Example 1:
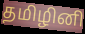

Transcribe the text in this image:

தமிழினி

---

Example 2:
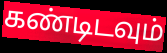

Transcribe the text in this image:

கண்டிடவும்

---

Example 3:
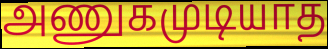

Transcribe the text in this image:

அணுகமுடியாத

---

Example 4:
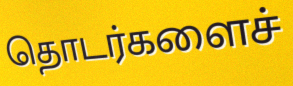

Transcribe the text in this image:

தொடர்களைச்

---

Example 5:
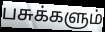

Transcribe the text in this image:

பசுக்களும்